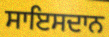
ਸਾਇਸਦਾਨ